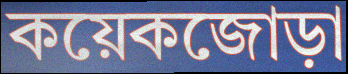
কয়েকজোড়া